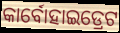
କାର୍ବୋହାଇଡ୍ରେଟ